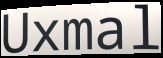
Uxmal